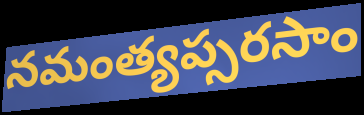
నమంత్యప్సరసాం